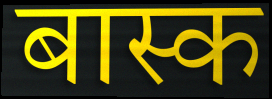
बास्क